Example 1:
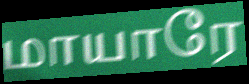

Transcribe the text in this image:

மாயாரே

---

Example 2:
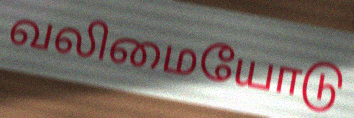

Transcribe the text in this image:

வலிமையோடு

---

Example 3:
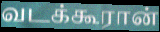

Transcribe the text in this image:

வடக்கூரான்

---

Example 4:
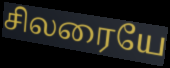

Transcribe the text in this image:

சிலரையே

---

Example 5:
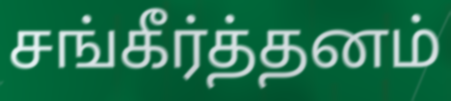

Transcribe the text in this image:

சங்கீர்த்தனம்